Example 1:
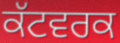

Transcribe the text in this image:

ਕੱਟਵਰਕ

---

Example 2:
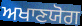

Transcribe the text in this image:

ਅਖਾਣਯੋਗ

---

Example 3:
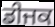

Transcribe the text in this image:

ਡੀਜਕ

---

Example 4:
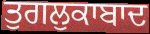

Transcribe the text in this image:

ਤੁਗਲੁਕਾਬਾਦ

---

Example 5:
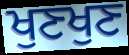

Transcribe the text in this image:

ਖੁਣਖੁਣ